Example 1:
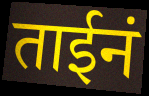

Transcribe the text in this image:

ताईनं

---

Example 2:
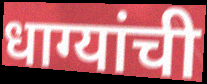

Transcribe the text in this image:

धाग्यांची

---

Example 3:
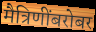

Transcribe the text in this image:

मैत्रिणींबरोबर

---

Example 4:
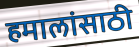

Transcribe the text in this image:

हमालांसाठी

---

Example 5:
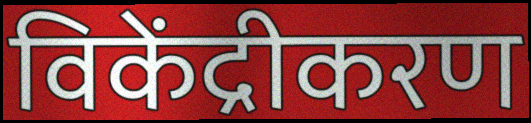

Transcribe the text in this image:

विकेंद्रीकरण